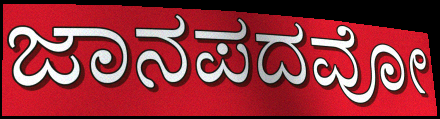
ಜಾನಪದವೋ